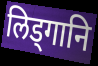
लिड्गानि